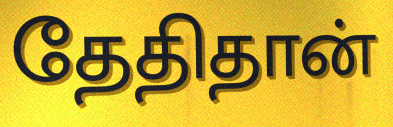
தேதிதான்